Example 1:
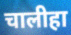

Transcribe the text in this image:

चालीहा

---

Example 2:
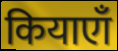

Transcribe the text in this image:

कियाएाँ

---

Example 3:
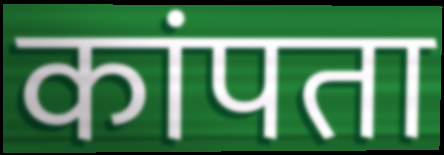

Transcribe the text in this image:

कांपता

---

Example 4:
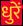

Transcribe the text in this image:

धुरें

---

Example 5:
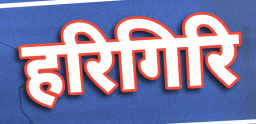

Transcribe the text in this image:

हरिगिरि